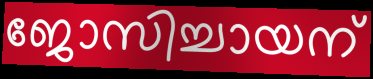
ജോസിച്ചായന്